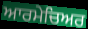
ਆਰਮੇਚਿਅਰ